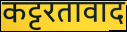
कट्टरतावाद